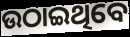
ଉଠାଇଥିବେ